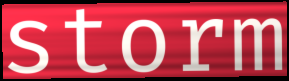
storm